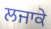
ਲਜਾਕੇ